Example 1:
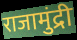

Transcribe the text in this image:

राजामुंद्री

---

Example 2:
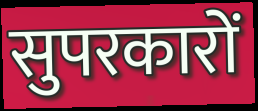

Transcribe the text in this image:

सुपरकारों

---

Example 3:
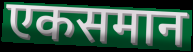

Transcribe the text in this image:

एकसमान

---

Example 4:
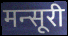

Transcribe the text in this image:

मन्सूरी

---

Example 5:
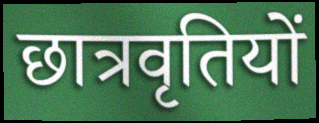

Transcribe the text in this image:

छात्रवृतियों